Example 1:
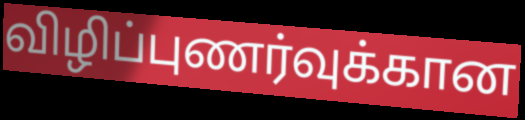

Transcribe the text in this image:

விழிப்புணர்வுக்கான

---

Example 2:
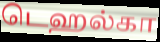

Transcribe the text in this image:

டெஹல்கா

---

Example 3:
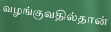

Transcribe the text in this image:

வழங்குவதில்தான்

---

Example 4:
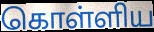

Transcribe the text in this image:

கொள்ளிய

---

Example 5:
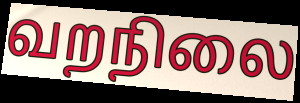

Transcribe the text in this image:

வறநிலை